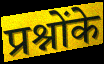
प्रश्नोंके